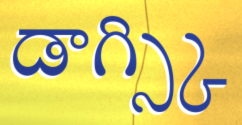
డాగ్స్కి